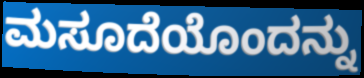
ಮಸೂದೆಯೊಂದನ್ನು